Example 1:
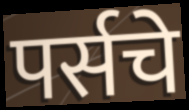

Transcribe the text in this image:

पर्सचे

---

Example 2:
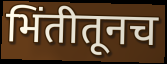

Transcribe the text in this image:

भिंतीतूनच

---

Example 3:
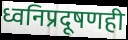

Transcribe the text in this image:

ध्वनिप्रदूषणही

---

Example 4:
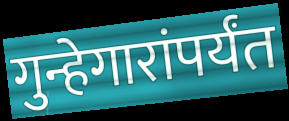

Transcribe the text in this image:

गुन्हेगारांपर्यंत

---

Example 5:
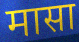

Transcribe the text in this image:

मासा